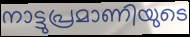
നാട്ടുപ്രമാണിയുടെ